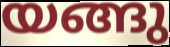
യങ്ങു